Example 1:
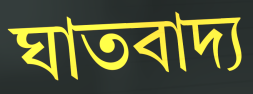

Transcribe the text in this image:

ঘাতবাদ্য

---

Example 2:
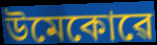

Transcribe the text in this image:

উমেকোৱে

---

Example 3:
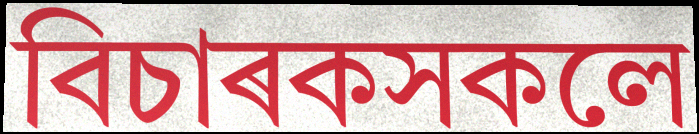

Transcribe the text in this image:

বিচাৰকসকলে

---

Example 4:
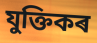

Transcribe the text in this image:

যুক্তিকৰ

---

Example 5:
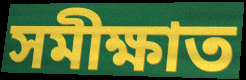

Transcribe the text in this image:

সমীক্ষাত